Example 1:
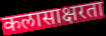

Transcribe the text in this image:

कलासाक्षरता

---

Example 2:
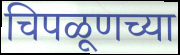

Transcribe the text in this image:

चिपळूणच्या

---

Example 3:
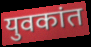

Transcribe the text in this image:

युवकांत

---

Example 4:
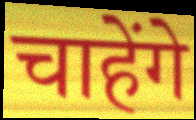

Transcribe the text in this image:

चाहेंगे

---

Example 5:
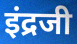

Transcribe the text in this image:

इंद्रजी